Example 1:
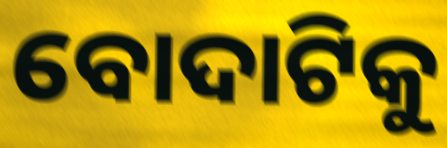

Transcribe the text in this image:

ବୋଦାଟିକୁ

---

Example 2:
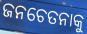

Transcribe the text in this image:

ଜନଚେତନାକୁ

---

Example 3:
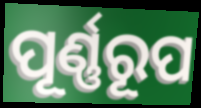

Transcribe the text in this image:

ପୂର୍ଣ୍ଣରୂପ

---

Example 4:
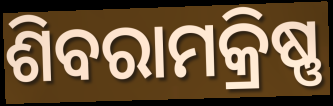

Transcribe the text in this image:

ଶିବରାମକ୍ରିଷ୍ଣ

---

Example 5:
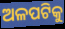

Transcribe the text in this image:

ଅଳପଟିକୁ